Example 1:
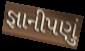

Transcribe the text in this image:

જ્ઞાનીપણું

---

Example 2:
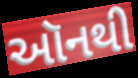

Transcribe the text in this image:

ઑનથી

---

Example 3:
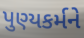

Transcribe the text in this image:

પુણ્યકર્મને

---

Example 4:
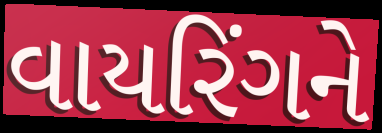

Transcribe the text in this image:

વાયરિંગને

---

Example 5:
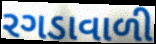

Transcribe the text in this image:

રગડાવાળી